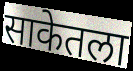
साकेतला